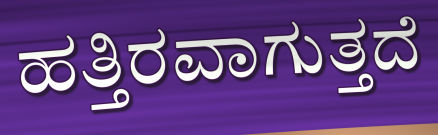
ಹತ್ತಿರವಾಗುತ್ತದೆ